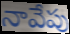
నావేపు